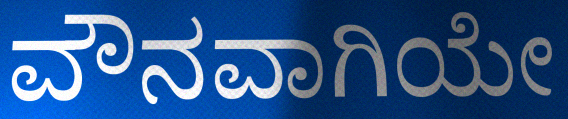
ವೌನವಾಗಿಯೇ